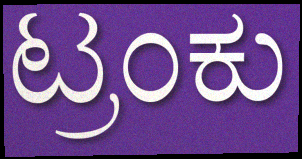
ಟ್ರಂಕು